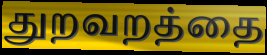
துறவறத்தை